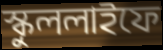
স্কুললাইফে